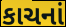
કાચનાં